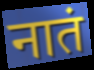
नातं